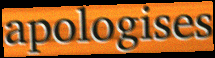
apologises